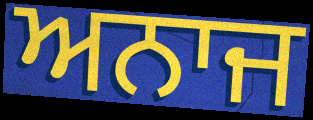
ਅਨਾਜ